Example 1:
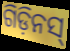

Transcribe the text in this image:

ଗିଡ଼ିନସ୍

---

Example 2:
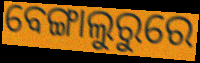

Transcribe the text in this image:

ବେଙ୍ଗାଲୁରୁରେ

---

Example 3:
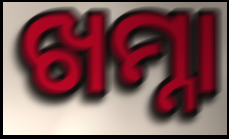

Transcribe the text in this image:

ଖମ୍ନା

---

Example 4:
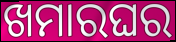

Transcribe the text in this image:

ଖମାରଘର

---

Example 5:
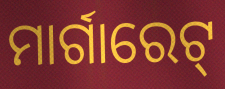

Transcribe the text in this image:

ମାର୍ଗାରେଟ୍